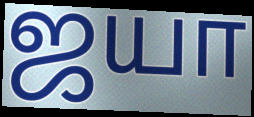
ஜயா